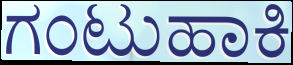
ಗಂಟುಹಾಕಿ